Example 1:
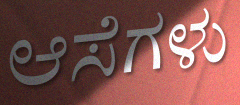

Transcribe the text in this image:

ಆಸೆಗಳು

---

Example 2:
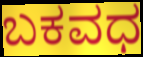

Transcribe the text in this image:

ಬಕವಧ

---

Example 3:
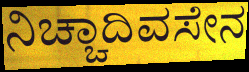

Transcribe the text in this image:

ನಿಚ್ಚಾದಿವಸೇನ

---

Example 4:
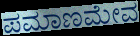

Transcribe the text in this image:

ಪಮಾಣಮೇವ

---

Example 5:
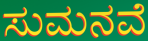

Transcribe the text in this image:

ಸುಮನವೆ